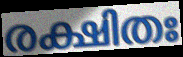
രക്ഷിതഃ